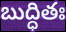
బుద్ధితః